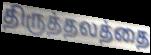
திருத்தலத்தை